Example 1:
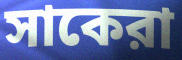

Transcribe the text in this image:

সাকেরা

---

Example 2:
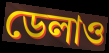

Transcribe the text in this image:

ডেলাও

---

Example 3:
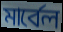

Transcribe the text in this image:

মার্বেল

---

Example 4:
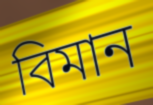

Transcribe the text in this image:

বিমান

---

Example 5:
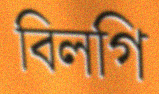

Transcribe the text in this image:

বিলগি